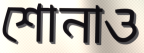
শোনাও